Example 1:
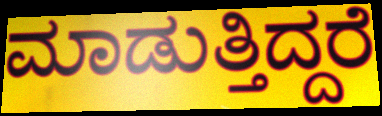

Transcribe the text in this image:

ಮಾಡುತ್ತಿದ್ದರೆ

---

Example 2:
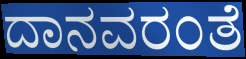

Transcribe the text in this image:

ದಾನವರಂತೆ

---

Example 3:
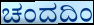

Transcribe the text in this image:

ಚಂದದಿಂ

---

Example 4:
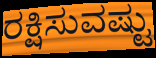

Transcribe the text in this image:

ರಕ್ಷಿಸುವಷ್ಟು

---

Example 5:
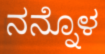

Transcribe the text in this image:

ನನ್ನೊಳ